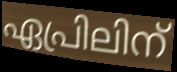
ഏപ്രിലിന്